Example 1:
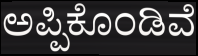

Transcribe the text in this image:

ಅಪ್ಪಿಕೊಂಡಿವೆ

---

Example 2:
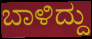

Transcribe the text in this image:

ಬಾಳಿದ್ದು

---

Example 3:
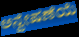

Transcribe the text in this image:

ಅನ್ವೇಷಣೆಯೆ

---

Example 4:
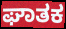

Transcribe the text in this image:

ಘಾತಕ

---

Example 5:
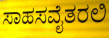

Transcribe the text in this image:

ಸಾಹಸವೈತರಲಿ